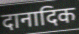
दानादिक